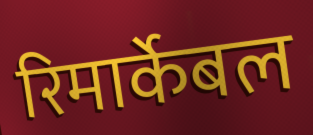
रिमार्केबल